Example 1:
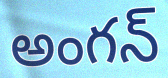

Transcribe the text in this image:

అంగన్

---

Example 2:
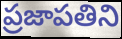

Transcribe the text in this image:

ప్రజాపతిని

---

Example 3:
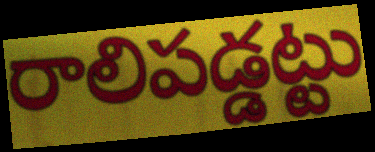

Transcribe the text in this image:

రాలిపడ్డట్టు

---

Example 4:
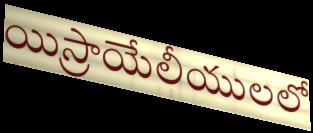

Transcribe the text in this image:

యిస్రాయేలీయులలో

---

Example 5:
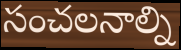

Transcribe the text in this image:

సంచలనాల్ని